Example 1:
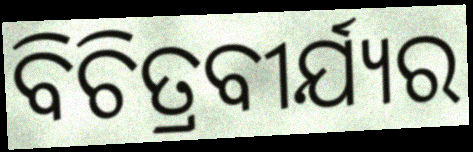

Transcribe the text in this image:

ବିଚିତ୍ରବୀର୍ଯ୍ୟର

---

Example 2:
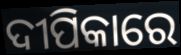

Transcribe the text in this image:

ଦୀପିକାରେ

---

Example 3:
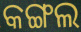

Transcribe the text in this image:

କଙ୍ଗଲ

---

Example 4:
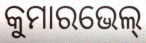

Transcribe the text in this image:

କୁମାରଭେଲ୍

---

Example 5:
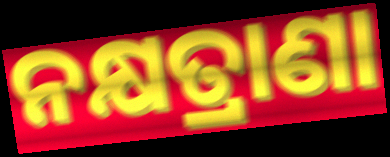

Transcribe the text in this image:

ନକ୍ଷତ୍ରାଣା